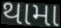
થામા